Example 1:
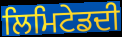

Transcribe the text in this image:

ਲਿਮਿਟੇਡਦੀ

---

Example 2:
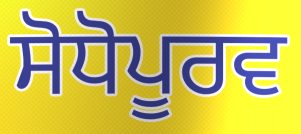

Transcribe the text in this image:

ਸੋਧੋਪੂਰਵ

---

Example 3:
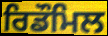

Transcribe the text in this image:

ਰਿਡੌਮਿਲ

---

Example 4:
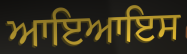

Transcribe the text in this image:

ਆਇਆਇਸ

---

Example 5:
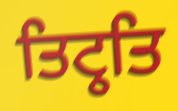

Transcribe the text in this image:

ਤਿਟ੍ਠਤਿ